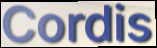
Cordis